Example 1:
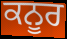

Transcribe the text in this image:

ਕਨੂਰ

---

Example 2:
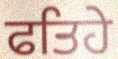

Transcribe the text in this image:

ਫਤਿਹੇ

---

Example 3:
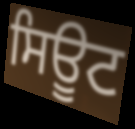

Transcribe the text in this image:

ਸਿਊਟ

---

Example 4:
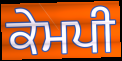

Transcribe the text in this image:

ਕੇਮਪੀ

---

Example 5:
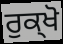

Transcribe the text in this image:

ਰੁਕ੍ਖੋ